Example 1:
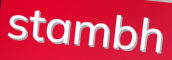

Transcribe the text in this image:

stambh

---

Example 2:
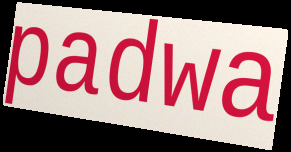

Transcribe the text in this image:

padwa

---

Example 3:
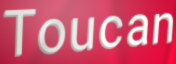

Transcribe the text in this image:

Toucan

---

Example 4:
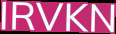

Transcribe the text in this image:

IRVKN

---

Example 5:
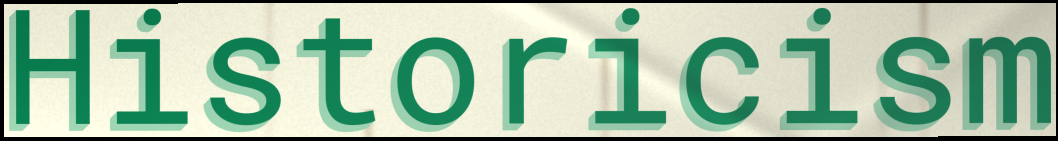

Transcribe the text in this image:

Historicism